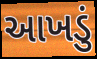
આખડું